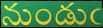
నుండుఁ